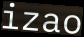
izao